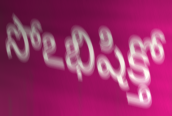
సోఽభిషిక్తో